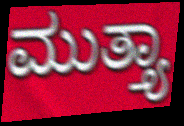
ಮುತ್ತ್ಯಾ